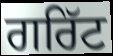
ਗਰਿੱਟ